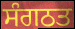
ਸੰਗਠਤ